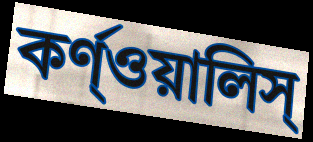
কর্ণ্ওয়ালিস্